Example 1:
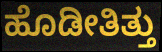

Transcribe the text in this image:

ಹೊಡೀತಿತ್ತು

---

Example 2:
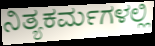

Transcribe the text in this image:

ನಿತ್ಯಕರ್ಮಗಳಲ್ಲಿ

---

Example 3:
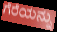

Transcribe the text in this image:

ಗೆರೆಯನ್ನು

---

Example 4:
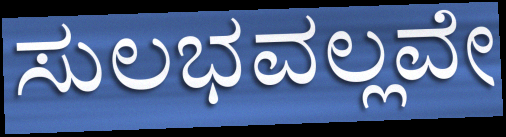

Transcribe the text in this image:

ಸುಲಭವಲ್ಲವೇ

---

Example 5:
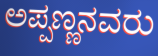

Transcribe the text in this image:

ಅಪ್ಪಣ್ಣನವರು